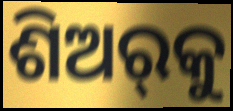
ଶିଅର୍‌କୁ